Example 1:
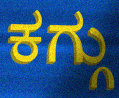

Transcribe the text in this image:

ಕಗ್ಗು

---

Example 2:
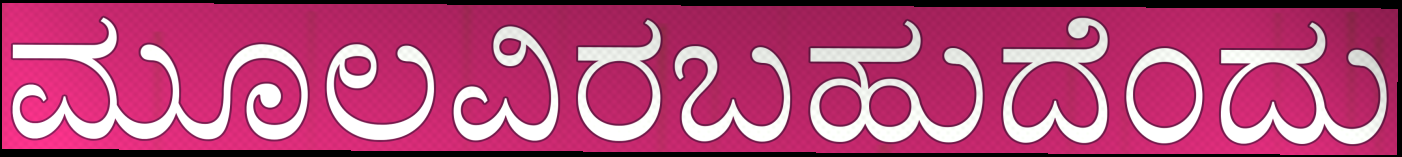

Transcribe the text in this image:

ಮೂಲವಿರಬಹುದೆಂದು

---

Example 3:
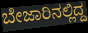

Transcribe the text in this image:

ಬೇಜಾರಿನಲ್ಲಿದ್ದ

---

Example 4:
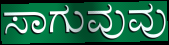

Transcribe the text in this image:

ಸಾಗುವುವು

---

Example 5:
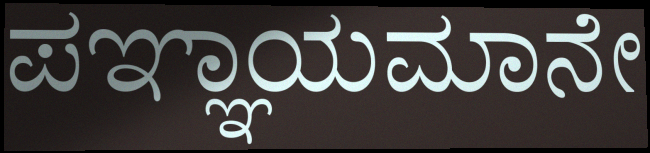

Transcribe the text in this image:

ಪಞ್ಞಾಯಮಾನೇ